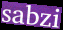
sabzi